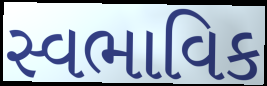
સ્વભાવિક